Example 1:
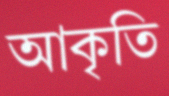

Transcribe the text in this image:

আকৃতি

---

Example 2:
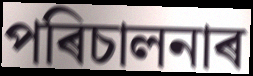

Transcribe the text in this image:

পৰিচালনাৰ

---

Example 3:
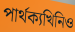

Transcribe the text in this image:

পাৰ্থক্যখিনিও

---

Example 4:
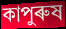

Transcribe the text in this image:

কাপুৰুষ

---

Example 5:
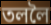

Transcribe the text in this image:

তললৈ